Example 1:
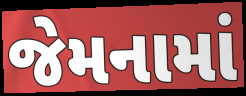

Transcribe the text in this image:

જેમનામાં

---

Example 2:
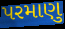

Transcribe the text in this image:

પરમાણુ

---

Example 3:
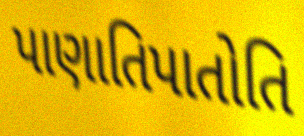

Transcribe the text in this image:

પાણાતિપાતોતિ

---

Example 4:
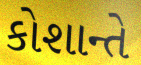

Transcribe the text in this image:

કોશાન્તે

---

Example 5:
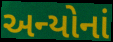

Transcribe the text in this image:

અન્યોનાં